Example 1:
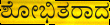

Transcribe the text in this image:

ಶೋಭಿತರಾದ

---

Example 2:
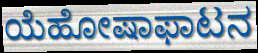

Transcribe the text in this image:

ಯೆಹೋಷಾಫಾಟನ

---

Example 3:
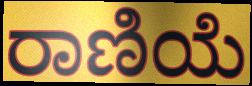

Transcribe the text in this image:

ರಾಣಿಯೆ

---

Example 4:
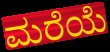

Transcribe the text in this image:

ಮರೆಯೆ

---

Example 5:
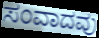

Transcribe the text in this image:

ಸಂವಾದವು